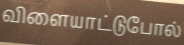
விளையாட்டுபோல்